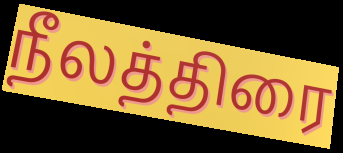
நீலத்திரை